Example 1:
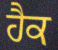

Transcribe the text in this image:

ਹੈਕ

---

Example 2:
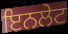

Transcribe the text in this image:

ਇਨਲੇਟ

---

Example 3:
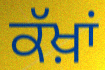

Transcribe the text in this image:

ਕੱਖ਼ਾਂ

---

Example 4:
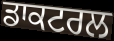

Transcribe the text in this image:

ਡਾਕਟਰਲ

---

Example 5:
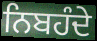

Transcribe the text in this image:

ਨਿਬਹੰਦੇ